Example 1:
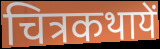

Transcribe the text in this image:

चित्रकथायें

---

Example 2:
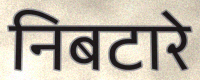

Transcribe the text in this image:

निबटारे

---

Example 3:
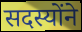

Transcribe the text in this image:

सदस्योंने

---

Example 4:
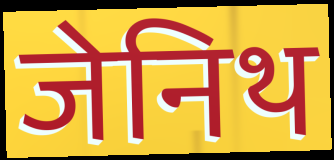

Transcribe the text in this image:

जेनिथ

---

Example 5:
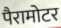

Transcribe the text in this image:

पैरामोटर